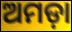
ଅମଡ଼ା